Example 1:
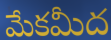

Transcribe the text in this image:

మేకమీద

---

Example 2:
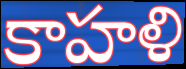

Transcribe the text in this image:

కాహళి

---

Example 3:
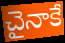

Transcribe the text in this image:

చైనాకే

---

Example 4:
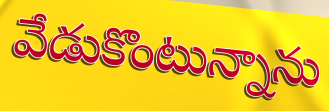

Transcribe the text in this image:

వేడుకొంటున్నాను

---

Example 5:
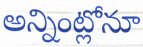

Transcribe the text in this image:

అన్నింట్లోనూ